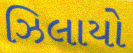
ઝિલાયો